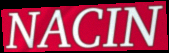
NACIN